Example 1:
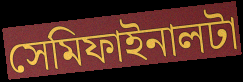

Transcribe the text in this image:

সেমিফাইনালটা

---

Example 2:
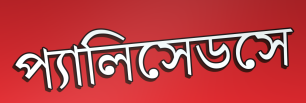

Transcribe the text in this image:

প্যালিসেডসে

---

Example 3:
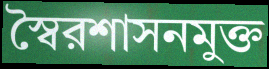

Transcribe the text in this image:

স্বৈরশাসনমুক্ত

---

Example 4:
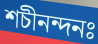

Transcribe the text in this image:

শচীনন্দনঃ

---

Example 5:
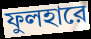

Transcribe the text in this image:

ফুলহারে